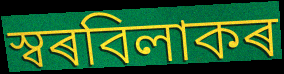
স্বৰবিলাকৰ